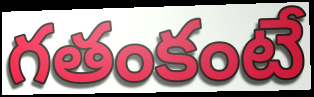
గతంకంటే